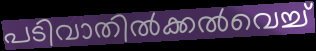
പടിവാതിൽക്കൽവെച്ച്